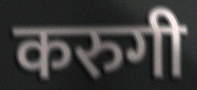
करुगी